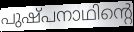
പുഷ്പനാഥിന്റെ